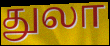
துலா